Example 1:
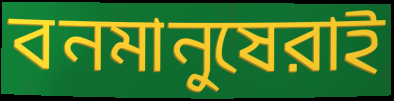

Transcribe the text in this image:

বনমানুষেরাই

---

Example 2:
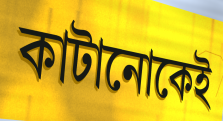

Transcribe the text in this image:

কাটানোকেই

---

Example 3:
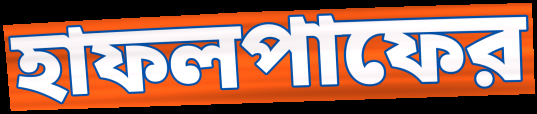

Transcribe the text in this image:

হাফলপাফের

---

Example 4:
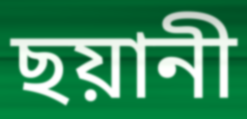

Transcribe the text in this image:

ছয়ানী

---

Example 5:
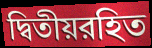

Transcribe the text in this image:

দ্বিতীয়রহিত